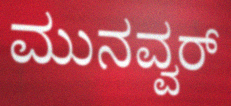
ಮುನವ್ವರ್